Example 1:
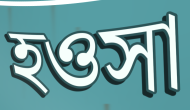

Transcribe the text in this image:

হওসা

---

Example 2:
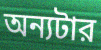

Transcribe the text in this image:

অন্যটার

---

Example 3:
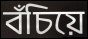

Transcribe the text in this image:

বঁচিয়ে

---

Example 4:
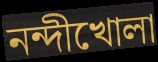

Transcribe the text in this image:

নন্দীখোলা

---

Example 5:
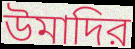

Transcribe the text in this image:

উমাদির